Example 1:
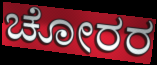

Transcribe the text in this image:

ಚೋರರ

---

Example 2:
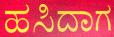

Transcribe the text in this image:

ಹಸಿದಾಗ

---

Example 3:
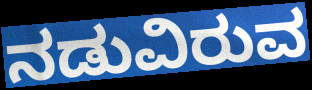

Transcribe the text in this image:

ನಡುವಿರುವ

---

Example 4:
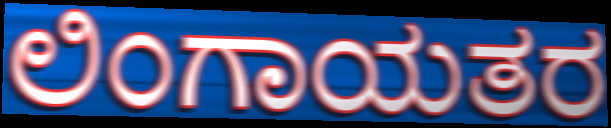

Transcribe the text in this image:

ಲಿಂಗಾಯತರ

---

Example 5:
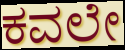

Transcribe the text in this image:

ಕವಲೇ